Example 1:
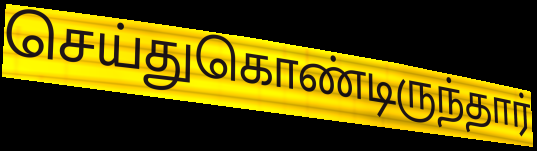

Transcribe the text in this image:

செய்துகொண்டிருந்தார்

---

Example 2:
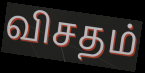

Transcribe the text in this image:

விசதம்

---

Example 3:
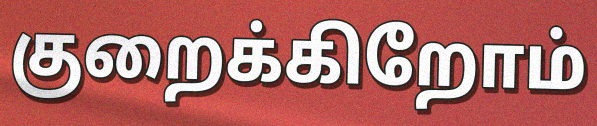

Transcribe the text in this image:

குறைக்கிறோம்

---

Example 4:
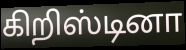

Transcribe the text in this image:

கிறிஸ்டினா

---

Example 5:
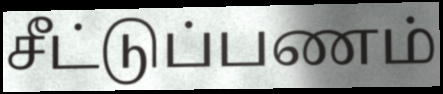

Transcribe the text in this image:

சீட்டுப்பணம்